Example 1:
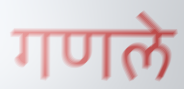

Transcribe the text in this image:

गणले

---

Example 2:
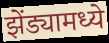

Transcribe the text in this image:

झेंड्यामध्ये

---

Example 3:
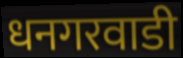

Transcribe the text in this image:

धनगरवाडी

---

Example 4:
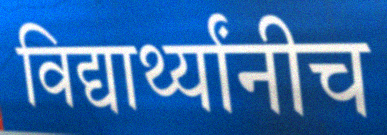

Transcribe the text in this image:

विद्यार्थ्यांनीच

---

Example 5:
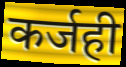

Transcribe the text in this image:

कर्जही